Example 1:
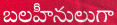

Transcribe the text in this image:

బలహీనులుగా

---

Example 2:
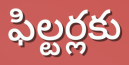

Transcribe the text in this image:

ఫిల్టర్లకు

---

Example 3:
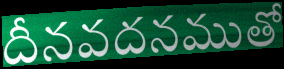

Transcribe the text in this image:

దీనవదనముతో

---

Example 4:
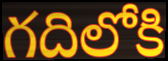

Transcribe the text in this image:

గదిలోకి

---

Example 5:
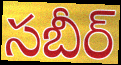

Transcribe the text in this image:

సబీర్